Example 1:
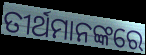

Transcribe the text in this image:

ତୀର୍ଥମାନଙ୍କରେ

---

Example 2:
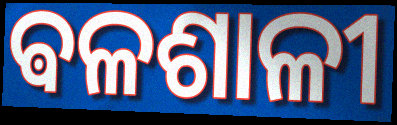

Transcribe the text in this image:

ଵଳଶାଳୀ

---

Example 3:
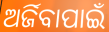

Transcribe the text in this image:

ଅର୍ଜିବାପାଇଁ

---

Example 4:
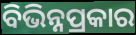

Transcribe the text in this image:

ବିଭିନ୍ନପ୍ରକାର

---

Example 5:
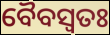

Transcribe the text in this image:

ବୈବସ୍ଵତଃ